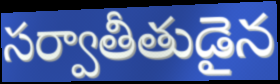
సర్వాతీతుడైన